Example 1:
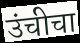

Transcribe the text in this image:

उंचीचा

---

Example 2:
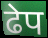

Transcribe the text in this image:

ढेप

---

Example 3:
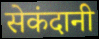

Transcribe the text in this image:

सेकंदानी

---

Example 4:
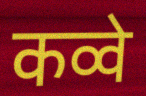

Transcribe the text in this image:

कव्वे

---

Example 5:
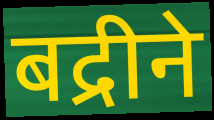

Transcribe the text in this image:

बद्रीने